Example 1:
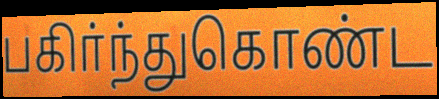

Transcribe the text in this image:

பகிர்ந்துகொண்ட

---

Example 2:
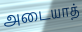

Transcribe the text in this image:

அடையாத்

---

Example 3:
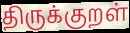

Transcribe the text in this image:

திருக்குறள்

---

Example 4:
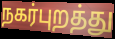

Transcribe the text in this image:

நகர்புறத்து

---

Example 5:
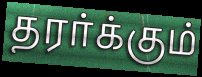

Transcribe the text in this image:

தரர்க்கும்